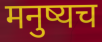
मनुष्यच